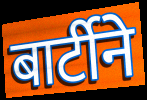
बार्टीने